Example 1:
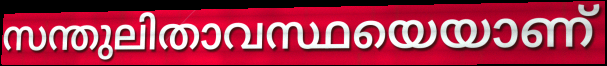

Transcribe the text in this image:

സന്തുലിതാവസ്ഥയെയാണ്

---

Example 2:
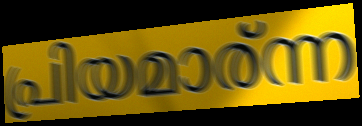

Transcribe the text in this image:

പ്രിയമാര്ന്ന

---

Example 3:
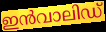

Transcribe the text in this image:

ഇൻവാലിഡ്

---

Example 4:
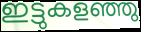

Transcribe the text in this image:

ഇട്ടുകളഞ്ഞു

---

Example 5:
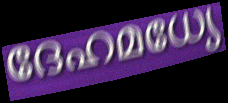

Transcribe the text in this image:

ദേഹമധ്യേ